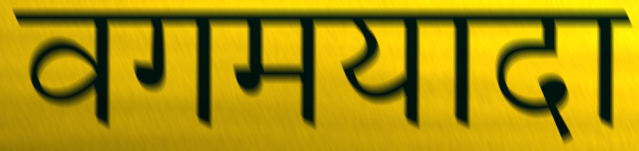
वगमयादा